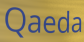
Qaeda